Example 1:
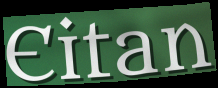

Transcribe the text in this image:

Eitan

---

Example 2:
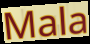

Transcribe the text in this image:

Mala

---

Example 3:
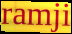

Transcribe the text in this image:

ramji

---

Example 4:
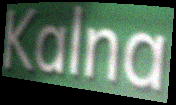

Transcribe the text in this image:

Kalna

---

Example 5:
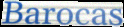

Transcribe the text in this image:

Barocas